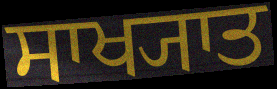
ਸਾਖ੍ਯਾਤ